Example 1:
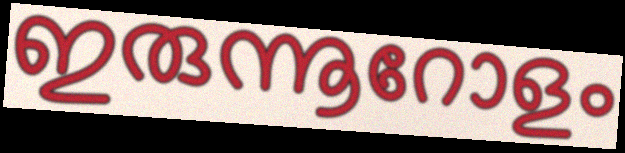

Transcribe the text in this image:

ഇരുന്നൂറോളം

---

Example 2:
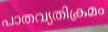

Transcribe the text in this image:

പാതവ്യതിക്രമം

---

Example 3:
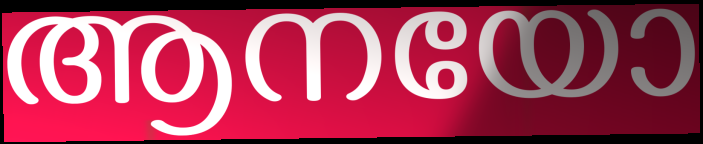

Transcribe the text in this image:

ആനയോ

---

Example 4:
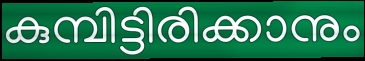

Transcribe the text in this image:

കുമ്പിട്ടിരിക്കാനും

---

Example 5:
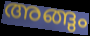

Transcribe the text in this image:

അങ്ങും